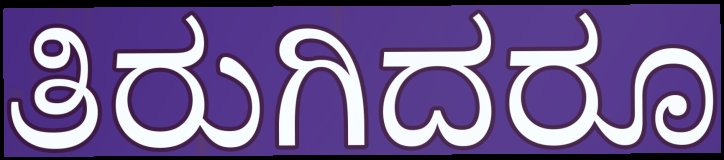
ತಿರುಗಿದರೂ